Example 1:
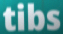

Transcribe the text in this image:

tibs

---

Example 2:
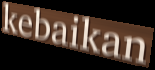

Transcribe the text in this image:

kebaikan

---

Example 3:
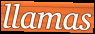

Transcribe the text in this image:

llamas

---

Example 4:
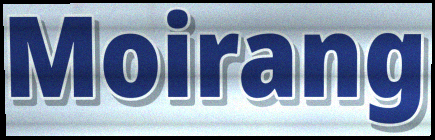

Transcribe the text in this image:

Moirang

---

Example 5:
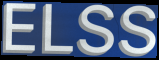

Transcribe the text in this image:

ELSS